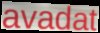
avadat